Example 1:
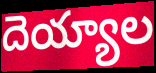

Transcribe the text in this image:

దెయ్యాల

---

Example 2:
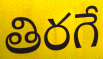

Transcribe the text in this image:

తిరగే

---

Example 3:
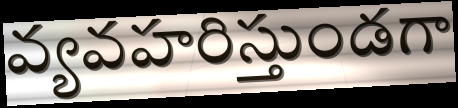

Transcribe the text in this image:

వ్యవహరిస్తుండగా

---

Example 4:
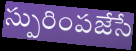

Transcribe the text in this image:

స్పురింపజేసే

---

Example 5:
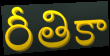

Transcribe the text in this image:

రీతికా